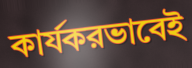
কার্যকরভাবেই